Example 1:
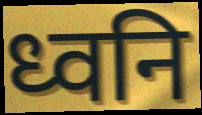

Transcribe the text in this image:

ध्‍वनि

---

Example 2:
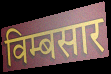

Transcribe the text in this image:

विम्बसार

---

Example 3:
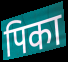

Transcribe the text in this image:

पिका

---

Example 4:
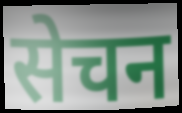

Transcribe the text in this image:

सेचन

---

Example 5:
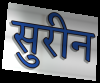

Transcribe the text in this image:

सुरीन